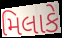
મિલાકે